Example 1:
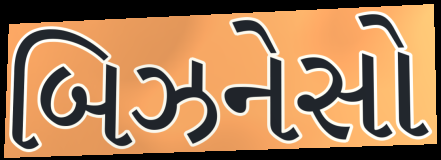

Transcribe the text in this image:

બિઝનેસો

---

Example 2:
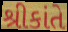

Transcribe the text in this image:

શ્રીકાંતે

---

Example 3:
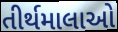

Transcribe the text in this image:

તીર્થમાલાઓ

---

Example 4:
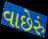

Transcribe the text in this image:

વાછેરું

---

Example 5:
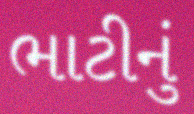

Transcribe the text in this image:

ભાટીનું